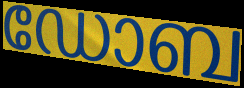
ഡോബ